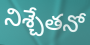
నిశ్చేతనో